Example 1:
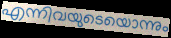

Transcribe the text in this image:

എന്നിവയുടെയൊന്നും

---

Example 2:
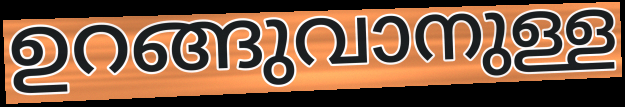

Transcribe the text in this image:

ഉറങ്ങുവാനുള്ള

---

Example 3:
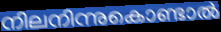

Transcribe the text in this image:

നിലനിന്നുകൊണ്ടാൽ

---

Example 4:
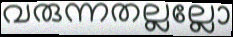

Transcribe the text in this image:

വരുന്നതല്ലല്ലോ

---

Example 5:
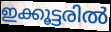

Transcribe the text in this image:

ഇക്കൂട്ടരിൽ